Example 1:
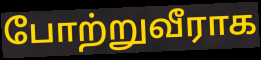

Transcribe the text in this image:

போற்றுவீராக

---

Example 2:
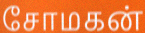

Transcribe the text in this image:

சோமகன்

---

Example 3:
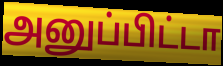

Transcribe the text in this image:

அனுப்பிட்டா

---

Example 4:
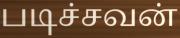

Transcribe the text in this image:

படிச்சவன்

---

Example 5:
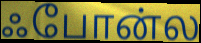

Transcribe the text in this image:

ஃபோன்ல